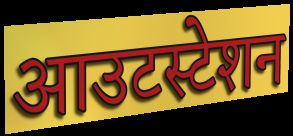
आउटस्टेशन